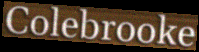
Colebrooke